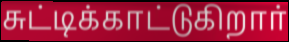
சுட்டிக்காட்டுகிறார்